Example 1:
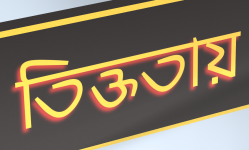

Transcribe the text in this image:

তিক্ততায়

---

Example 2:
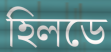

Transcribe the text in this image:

হিলডে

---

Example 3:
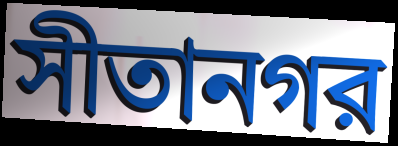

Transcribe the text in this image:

সীতানগর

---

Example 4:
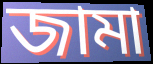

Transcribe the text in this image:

জামা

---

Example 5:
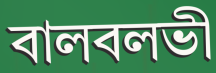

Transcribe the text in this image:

বালবলভী